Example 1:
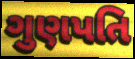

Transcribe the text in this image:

ગુણપતિ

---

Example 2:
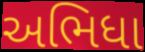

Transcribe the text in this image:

અભિધા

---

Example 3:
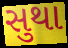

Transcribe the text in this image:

સુથા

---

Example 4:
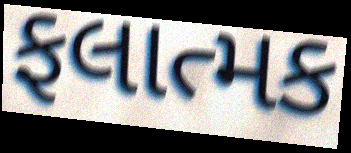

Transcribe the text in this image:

ફલાત્મક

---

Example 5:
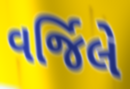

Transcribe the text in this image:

વર્જિલે